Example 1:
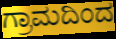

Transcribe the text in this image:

ಗ್ರಾಮದಿಂದ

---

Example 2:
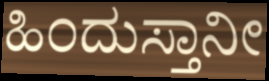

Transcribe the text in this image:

ಹಿಂದುಸ್ತಾನೀ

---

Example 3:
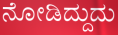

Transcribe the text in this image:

ನೋಡಿದ್ದುದು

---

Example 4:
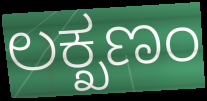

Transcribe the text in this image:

ಲಕ್ಖಣಂ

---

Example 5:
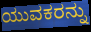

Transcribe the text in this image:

ಯುವಕರನ್ನು